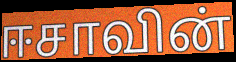
ஈசாவின்